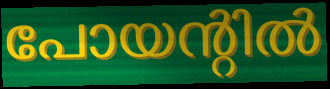
പോയന്റിൽ